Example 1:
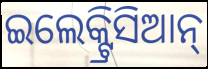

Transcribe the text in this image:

ଇଲେକ୍ଟ୍ରିସିଆନ୍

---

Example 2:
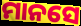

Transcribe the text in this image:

ମାନସେ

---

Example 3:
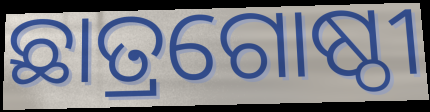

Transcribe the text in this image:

ଛାତ୍ରଗୋଷ୍ଠୀ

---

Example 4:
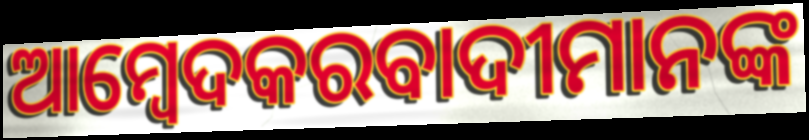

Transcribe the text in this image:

ଆମ୍ବେଦକରବାଦୀମାନଙ୍କ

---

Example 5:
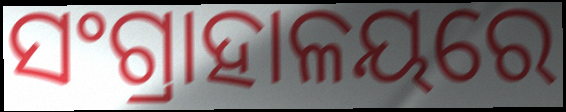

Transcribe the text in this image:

ସଂଗ୍ରାହାଳୟରେ